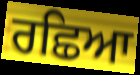
ਰਛਿਆ